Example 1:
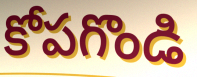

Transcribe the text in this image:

కోపగొండి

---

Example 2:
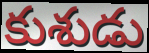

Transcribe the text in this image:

కుశుడు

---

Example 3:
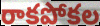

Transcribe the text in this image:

రాకపోకల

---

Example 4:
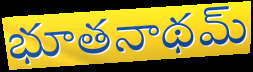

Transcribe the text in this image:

భూతనాథమ్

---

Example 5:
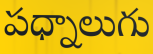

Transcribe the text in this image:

పధ్నాలుగు